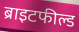
ब्राइटफील्ड